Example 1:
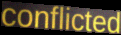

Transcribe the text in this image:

conflicted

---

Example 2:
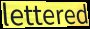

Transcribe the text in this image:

lettered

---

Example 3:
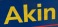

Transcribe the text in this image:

Akin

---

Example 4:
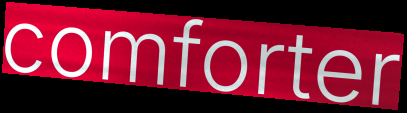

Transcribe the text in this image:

comforter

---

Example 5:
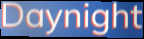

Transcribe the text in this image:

Daynight